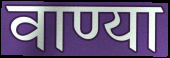
वाण्या